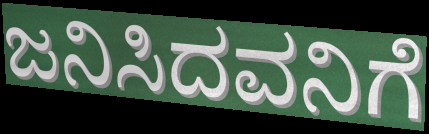
ಜನಿಸಿದವನಿಗೆ